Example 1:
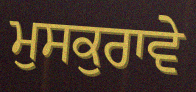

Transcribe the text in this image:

ਮੁਸਕੁਰਾਵੇ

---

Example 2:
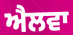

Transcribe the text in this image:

ਐਲਵਾ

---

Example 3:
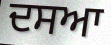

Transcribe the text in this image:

ਦਸਆ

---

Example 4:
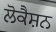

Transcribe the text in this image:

ਲੋਕੈਸ਼ਨ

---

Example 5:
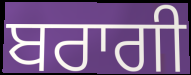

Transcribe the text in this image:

ਬਰਾਗੀ